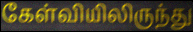
கேள்வியிலிருந்து